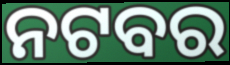
ନଟବର